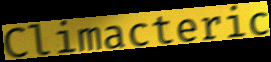
Climacteric